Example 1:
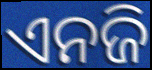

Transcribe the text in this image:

ଏନଜି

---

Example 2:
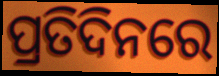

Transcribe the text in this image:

ପ୍ରତିଦିନରେ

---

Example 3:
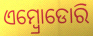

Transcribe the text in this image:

ଏମ୍ବ୍ରୋଡୋରି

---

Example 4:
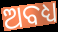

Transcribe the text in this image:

ଅବଧ୍ୟ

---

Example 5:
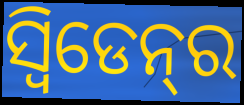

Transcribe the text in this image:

ସ୍ୱିଡେନ୍‍ର